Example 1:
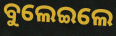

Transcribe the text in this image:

ବୁଲେଇଲେ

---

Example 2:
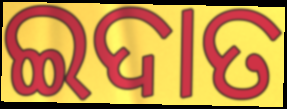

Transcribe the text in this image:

ଇଦାତ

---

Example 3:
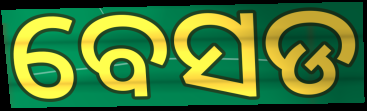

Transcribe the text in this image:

ବେସଡ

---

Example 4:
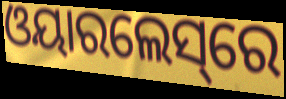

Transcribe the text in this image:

ଓୟାରଲେସ୍‌ରେ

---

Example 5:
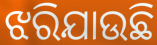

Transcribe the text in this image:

ଝରିଯାଉଛି